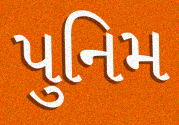
પુનિમ